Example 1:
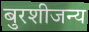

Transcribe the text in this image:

बुरशीजन्य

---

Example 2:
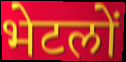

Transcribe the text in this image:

भेटलों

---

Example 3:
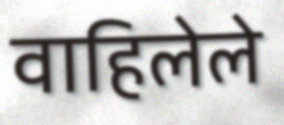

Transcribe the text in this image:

वाहिलेले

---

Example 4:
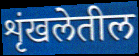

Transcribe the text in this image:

शृंखलेतील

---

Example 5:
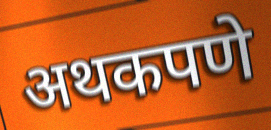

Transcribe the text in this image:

अथकपणे